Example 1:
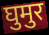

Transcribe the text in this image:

घुमुर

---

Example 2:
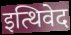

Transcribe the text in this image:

इत्थिवेद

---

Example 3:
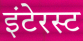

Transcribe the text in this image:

इंटेरस्ट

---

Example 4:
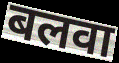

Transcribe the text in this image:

बलवा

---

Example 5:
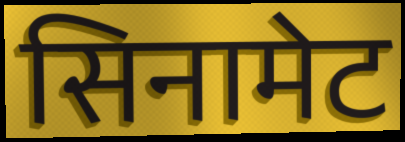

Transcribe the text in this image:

सिनामेट